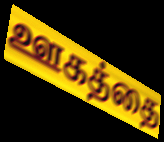
ஊகத்தை